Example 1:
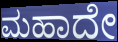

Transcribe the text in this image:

ಮಹಾದೇ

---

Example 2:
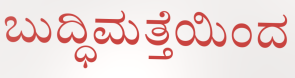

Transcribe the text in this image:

ಬುದ್ಧಿಮತ್ತೆಯಿಂದ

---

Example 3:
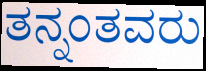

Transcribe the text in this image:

ತನ್ನಂತವರು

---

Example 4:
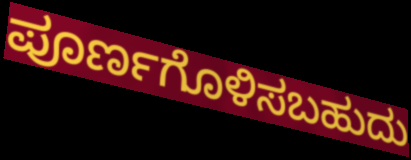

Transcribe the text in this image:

ಪೂರ್ಣಗೊಳಿಸಬಹುದು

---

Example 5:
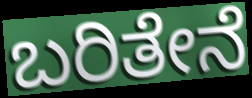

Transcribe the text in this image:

ಬರಿತೇನೆ